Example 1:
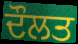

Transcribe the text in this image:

ਦੌਲਤ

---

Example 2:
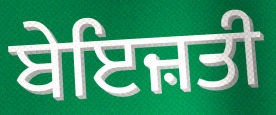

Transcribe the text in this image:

ਬੇਇਜ਼ਤੀ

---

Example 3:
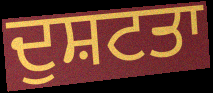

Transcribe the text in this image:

ਦੁਸ਼ਟਤਾ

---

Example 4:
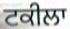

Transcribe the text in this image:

ਟਕੀਲਾ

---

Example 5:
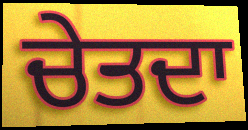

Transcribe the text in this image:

ਚੇਤਦਾ